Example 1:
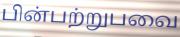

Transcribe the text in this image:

பின்பற்றுபவை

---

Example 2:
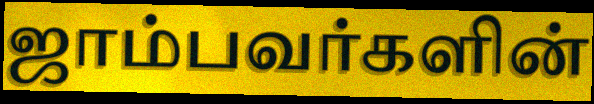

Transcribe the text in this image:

ஜாம்பவர்களின்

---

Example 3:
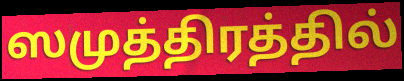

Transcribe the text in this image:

ஸமுத்திரத்தில்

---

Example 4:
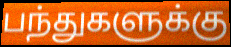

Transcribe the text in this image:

பந்துகளுக்கு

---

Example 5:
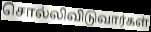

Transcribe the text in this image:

சொல்லிவிடுவார்கள்